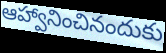
ఆహ్వానించినందుకు